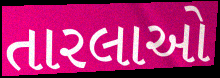
તારલાઓ